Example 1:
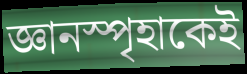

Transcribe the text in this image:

জ্ঞানস্পৃহাকেই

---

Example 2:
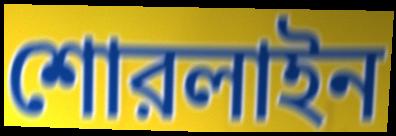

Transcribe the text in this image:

শোরলাইন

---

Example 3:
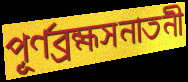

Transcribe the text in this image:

পূর্ণব্রহ্মসনাতনী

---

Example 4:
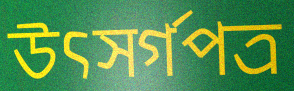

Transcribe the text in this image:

উৎসর্গপত্র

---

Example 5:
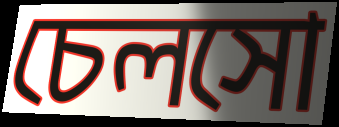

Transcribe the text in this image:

চেলসো